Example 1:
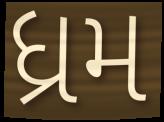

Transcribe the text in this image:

ધ્રમ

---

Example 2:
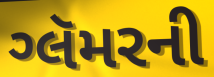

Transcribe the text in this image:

ગ્લૅમરની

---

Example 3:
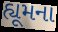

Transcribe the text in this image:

હ્યૂમના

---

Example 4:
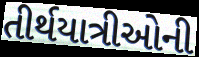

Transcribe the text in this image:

તીર્થયાત્રીઓની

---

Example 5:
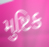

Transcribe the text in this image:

મુષ્ટિક